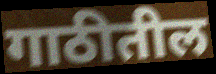
गाठीतील